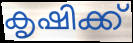
കൃഷിക്ക്